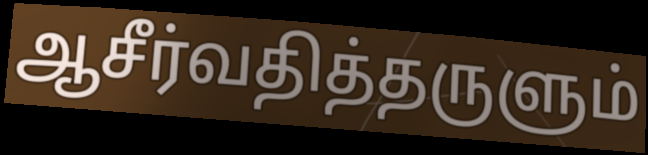
ஆசீர்வதித்தருளும்